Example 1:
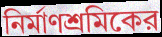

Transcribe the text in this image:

নির্মাণশ্রমিকের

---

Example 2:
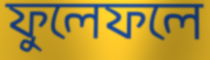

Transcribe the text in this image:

ফুলেফলে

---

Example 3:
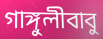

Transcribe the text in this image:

গাঙ্গুলীবাবু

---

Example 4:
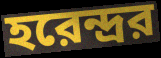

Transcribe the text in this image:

হরেন্দ্রর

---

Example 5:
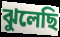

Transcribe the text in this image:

ঝুলেছি